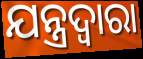
ଯନ୍ତ୍ରଦ୍ଵାରା